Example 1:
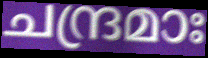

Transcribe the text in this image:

ചന്ദ്രമാഃ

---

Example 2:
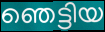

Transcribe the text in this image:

ഞെട്ടിയ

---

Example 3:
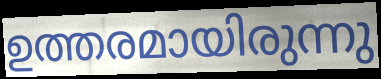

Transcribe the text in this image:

ഉത്തരമായിരുന്നു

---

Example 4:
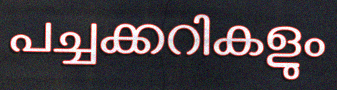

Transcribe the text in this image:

പച്ചക്കറികളും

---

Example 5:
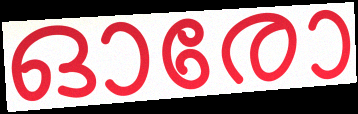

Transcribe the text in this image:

ഓരോ